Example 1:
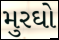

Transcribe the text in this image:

મુરઘો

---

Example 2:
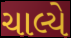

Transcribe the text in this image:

ચાલ્યે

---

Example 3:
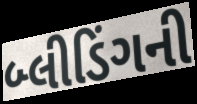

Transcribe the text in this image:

બ્લીડિંગની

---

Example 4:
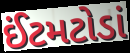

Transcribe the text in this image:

ઈંટમટોડાં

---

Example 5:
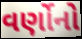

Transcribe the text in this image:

વર્ણોનો